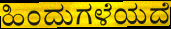
ಹಿಂದುಗಳೆಯದೆ